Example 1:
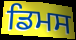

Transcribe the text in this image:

ਡਿਮਸ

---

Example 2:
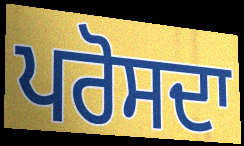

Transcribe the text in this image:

ਪਰੋਸਦਾ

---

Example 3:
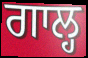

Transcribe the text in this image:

ਗਾਲ੍ਹ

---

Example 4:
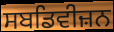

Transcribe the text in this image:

ਸਬਡਿਵੀਜ਼ਨ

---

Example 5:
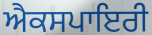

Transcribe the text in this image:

ਐਕਸਪਾਇਰੀ